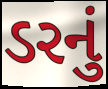
ડરનું